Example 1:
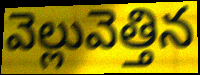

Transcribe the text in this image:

వెల్లువెత్తిన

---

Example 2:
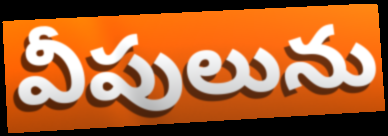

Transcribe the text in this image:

వీపులును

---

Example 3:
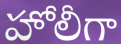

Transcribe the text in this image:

హోలీగా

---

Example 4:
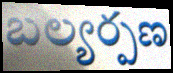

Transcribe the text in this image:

బల్యర్పణ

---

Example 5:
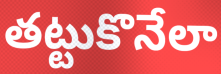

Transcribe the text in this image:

తట్టుకొనేలా